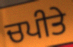
ਚਪੀਤੇ